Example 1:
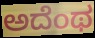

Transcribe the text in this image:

ಅದೆಂಥ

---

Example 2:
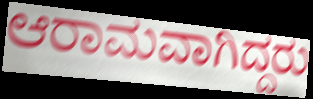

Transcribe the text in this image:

ಆರಾಮವಾಗಿದ್ದರು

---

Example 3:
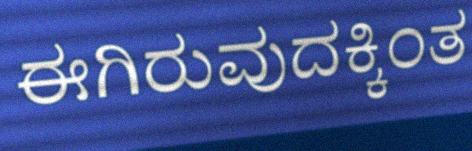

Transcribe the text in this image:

ಈಗಿರುವುದಕ್ಕಿಂತ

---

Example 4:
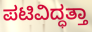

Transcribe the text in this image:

ಪಟಿವಿದ್ಧತ್ತಾ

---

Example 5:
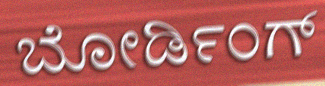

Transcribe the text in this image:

ಬೋರ್ಡಿಂಗ್